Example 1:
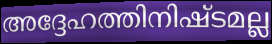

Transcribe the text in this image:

അദ്ദേഹത്തിനിഷ്ടമല്ല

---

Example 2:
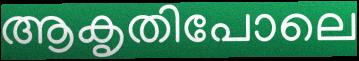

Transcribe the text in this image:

ആകൃതിപോലെ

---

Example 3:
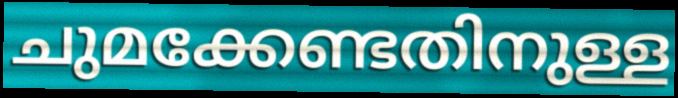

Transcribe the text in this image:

ചുമക്കേണ്ടതിനുള്ള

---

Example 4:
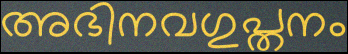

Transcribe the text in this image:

അഭിനവഗുപ്തനം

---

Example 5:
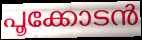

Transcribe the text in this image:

പൂക്കോടൻ